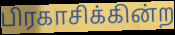
பிரகாசிக்கின்ற